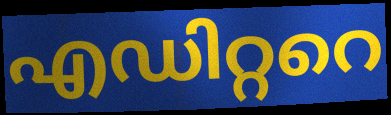
എഡിറ്ററെ